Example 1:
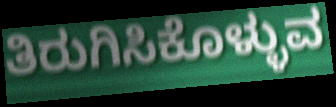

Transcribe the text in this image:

ತಿರುಗಿಸಿಕೊಳ್ಳುವ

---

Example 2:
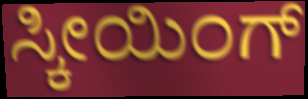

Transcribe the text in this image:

ಸ್ಕೀಯಿಂಗ್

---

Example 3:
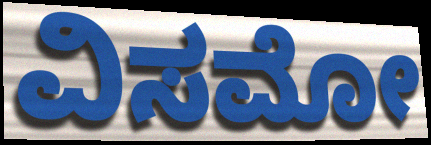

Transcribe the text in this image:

ವಿಸಮೋ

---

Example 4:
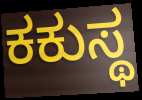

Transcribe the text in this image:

ಕಕುಸ್ಥ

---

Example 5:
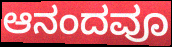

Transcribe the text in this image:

ಆನಂದವೂ